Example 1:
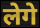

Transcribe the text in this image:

लेगे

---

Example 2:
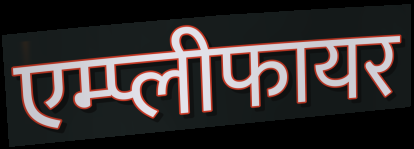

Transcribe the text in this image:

एम्प्लीफायर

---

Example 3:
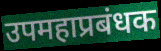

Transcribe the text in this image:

उपमहाप्रबंधक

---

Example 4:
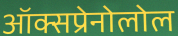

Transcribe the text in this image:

ऑक्सप्रेनोलोल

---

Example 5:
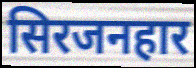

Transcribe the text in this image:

सिरजनहार